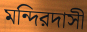
মন্দিরদাসী